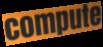
compute